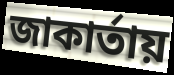
জাকার্তায়